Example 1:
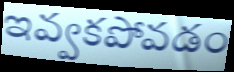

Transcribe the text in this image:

ఇవ్వకపోవడం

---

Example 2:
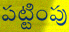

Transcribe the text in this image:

పట్టింపు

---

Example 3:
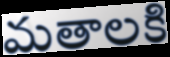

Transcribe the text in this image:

మతాలకి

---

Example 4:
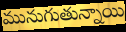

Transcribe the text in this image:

మునుగుతున్నాయి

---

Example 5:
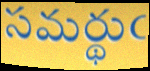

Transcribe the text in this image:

సమర్థుఁ